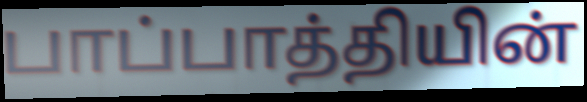
பாப்பாத்தியின்